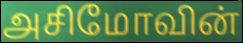
அசிமோவின்